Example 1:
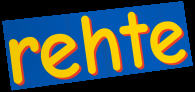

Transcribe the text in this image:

rehte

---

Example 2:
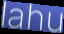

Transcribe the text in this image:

lahu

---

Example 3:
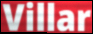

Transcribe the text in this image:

Villar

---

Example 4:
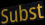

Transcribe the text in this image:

Subst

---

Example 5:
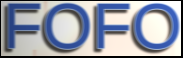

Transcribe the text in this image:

FOFO